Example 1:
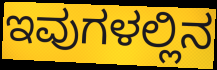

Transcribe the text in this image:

ಇವುಗಳಲ್ಲಿನ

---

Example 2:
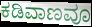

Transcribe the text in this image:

ಕಡಿವಾಣವೂ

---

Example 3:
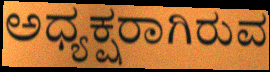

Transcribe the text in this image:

ಅಧ್ಯಕ್ಷರಾಗಿರುವ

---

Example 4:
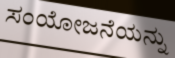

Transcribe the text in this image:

ಸಂಯೋಜನೆಯನ್ನು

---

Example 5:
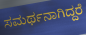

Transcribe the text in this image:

ಸಮರ್ಥನಾಗಿದ್ದರೆ